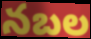
నబల